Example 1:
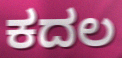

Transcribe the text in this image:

ಕದಲ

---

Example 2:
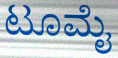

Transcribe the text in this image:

ಟೂಮೈ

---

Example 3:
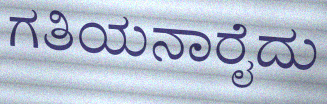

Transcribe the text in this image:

ಗತಿಯನಾರೈದು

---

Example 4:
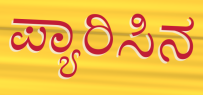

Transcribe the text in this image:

ಪ್ಯಾರಿಸಿನ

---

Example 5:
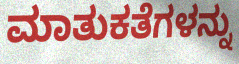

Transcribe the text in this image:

ಮಾತುಕತೆಗಳನ್ನು